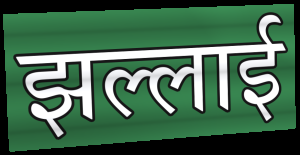
झल्लाई